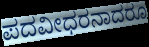
ಪದವೀಧರನಾದರೂ